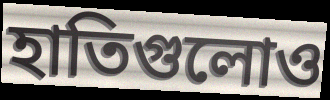
হাতিগুলোও